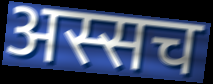
अस्सच